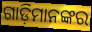
ଗାଡ଼ିମାନଙ୍କର